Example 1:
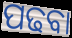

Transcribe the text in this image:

ପଢବା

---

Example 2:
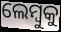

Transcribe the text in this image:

ଲେମ୍ବୁକୁ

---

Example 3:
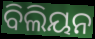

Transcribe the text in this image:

ବିଲିୟନ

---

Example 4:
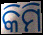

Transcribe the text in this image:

କିମି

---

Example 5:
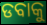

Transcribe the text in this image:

ଡବାକୁ